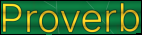
Proverb